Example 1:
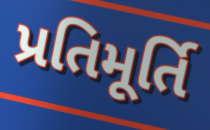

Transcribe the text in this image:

પ્રતિમૂર્તિ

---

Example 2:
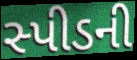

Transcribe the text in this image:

સ્પીડની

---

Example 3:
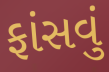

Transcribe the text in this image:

ફાંસવું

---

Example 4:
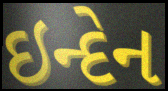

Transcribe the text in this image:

ઇન્દેન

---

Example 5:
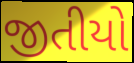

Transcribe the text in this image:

જીતીયો